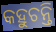
କହୁଚନ୍ତି